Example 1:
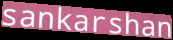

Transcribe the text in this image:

sankarshan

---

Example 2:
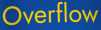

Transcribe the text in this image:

Overflow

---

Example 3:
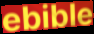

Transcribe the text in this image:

ebible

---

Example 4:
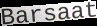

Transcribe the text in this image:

Barsaat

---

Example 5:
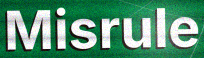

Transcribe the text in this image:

Misrule